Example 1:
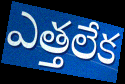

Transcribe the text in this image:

ఎత్తలేక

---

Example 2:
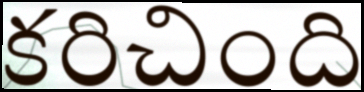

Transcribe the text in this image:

కరిచింది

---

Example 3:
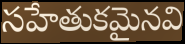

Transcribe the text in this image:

సహేతుకమైనవి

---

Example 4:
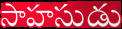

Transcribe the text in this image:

సాహసుడు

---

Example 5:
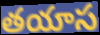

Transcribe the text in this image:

తయాస